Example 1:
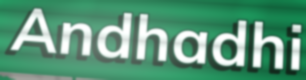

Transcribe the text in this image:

Andhadhi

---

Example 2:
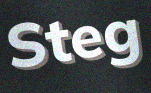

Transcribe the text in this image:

Steg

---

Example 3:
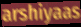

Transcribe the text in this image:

arshiyaas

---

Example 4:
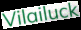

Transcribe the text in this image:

Vilailuck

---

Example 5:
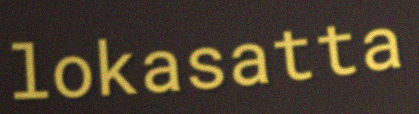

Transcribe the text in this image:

lokasatta